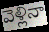
వెళ్లినా